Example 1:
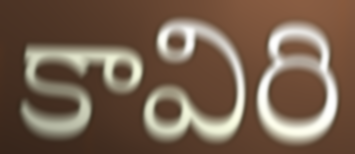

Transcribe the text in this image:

కావిరి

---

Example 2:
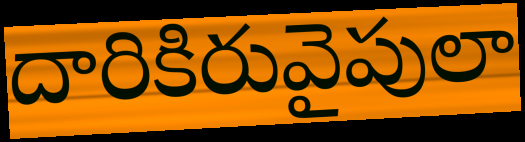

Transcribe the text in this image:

దారికిరువైపులా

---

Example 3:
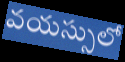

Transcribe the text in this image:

వయస్సులో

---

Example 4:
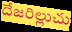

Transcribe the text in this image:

దేజరిల్లుచు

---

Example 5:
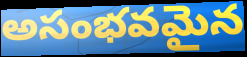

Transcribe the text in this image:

అసంభవమైన